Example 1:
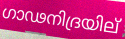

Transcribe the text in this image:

ഗാഢനിദ്രയില്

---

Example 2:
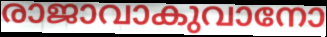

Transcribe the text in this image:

രാജാവാകുവാനോ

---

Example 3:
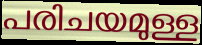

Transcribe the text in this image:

പരിചയമുള്ള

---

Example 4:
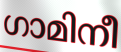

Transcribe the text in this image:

ഗാമിനീ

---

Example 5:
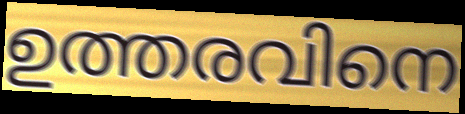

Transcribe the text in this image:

ഉത്തരവിനെ